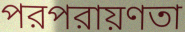
পরপরায়ণতা